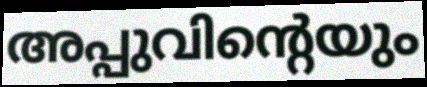
അപ്പുവിന്റെയും